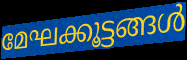
മേഘക്കൂട്ടങ്ങൾ